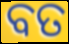
ବତ